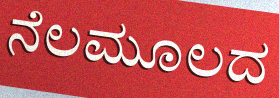
ನೆಲಮೂಲದ